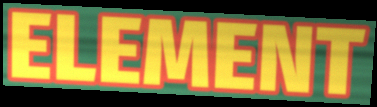
ELEMENT